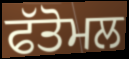
ਫੱਤੋਮਲ